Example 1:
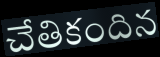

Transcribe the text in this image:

చేతికందిన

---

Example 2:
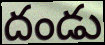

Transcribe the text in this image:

దండు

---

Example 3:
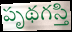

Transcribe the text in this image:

పృథగస్తి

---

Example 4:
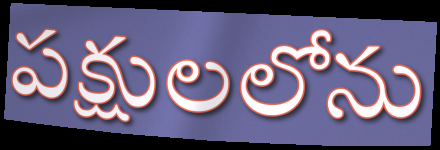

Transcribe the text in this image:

పక్షులలోను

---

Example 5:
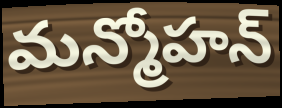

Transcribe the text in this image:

మన్మోహన్